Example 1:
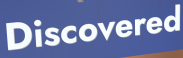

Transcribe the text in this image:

Discovered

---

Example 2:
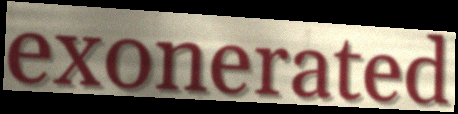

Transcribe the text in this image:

exonerated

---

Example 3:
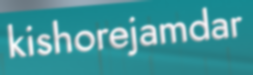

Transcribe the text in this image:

kishorejamdar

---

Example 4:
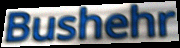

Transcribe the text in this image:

Bushehr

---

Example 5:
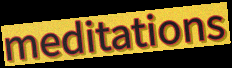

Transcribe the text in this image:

meditations